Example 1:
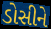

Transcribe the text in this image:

ડોસીને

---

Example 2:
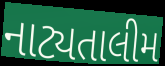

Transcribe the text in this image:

નાટ્યતાલીમ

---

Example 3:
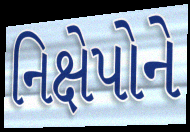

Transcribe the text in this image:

નિક્ષેપોને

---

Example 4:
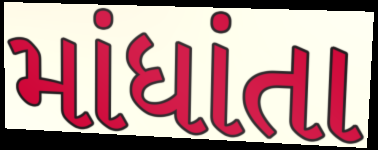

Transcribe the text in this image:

માંધાંતા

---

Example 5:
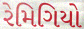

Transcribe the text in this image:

રેમિગિયો